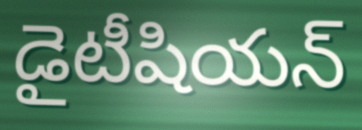
డైటీషియన్